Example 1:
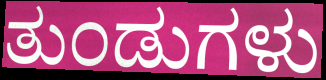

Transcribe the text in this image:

ತುಂಡುಗಳು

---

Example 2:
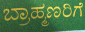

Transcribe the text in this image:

ಬ್ರಾಹ್ಮಣರಿಗೆ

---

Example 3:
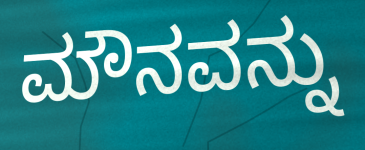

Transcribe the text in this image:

ಮೌನವನ್ನು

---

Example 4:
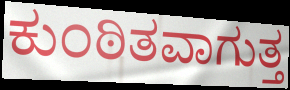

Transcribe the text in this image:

ಕುಂಠಿತವಾಗುತ್ತ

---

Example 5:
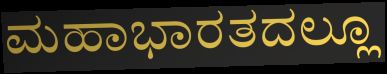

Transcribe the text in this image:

ಮಹಾಭಾರತದಲ್ಲೂ